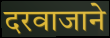
दरवाजाने